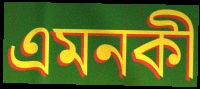
এমনকী